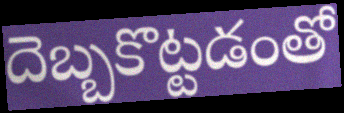
దెబ్బకొట్టడంతో